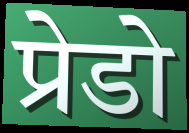
प्रेडो